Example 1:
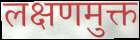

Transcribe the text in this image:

लक्षणमुक्त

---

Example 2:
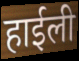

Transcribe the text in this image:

हाईली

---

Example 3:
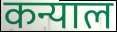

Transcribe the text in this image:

कन्याल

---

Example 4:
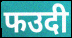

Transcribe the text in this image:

फउदी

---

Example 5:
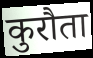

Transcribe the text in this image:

कुरौता